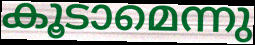
കൂടാമെന്നു